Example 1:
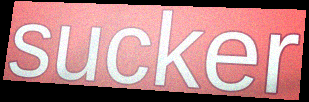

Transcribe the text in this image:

sucker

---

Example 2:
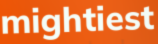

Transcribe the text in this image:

mightiest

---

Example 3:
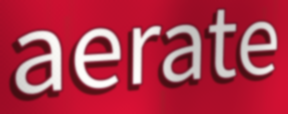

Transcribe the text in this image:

aerate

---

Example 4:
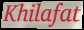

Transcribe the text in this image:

Khilafat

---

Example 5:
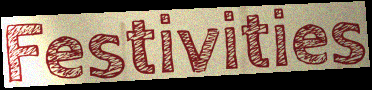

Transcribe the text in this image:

Festivities